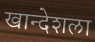
खान्देशला